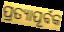
ପ୍ରତ୍ୟାପୂର୍ବକ